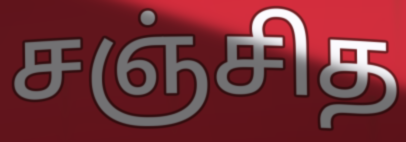
சஞ்சித